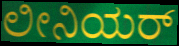
ಲೀನಿಯರ್